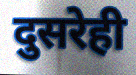
दुसरेही